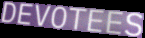
DEVOTEES